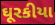
ઘૂરકીયા